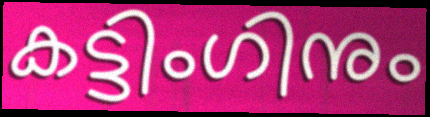
കട്ടിംഗിനും